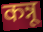
कन्नू